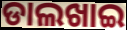
ଡାଲଖାଇ